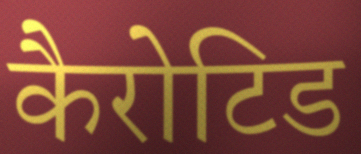
कैरोटिड